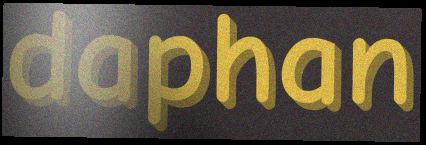
daphan